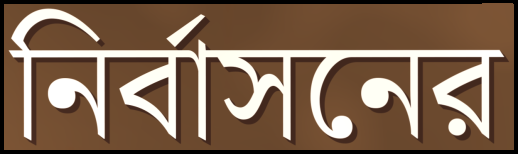
নির্বাসনের